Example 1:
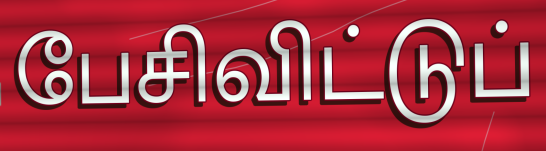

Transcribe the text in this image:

பேசிவிட்டுப்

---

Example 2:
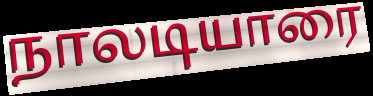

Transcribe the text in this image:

நாலடியாரை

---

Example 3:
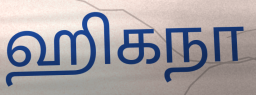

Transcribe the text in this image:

ஹிகநா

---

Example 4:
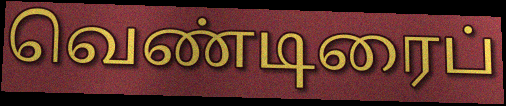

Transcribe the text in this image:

வெண்டிரைப்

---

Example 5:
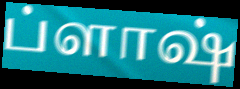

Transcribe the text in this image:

ப்ளாஷ்